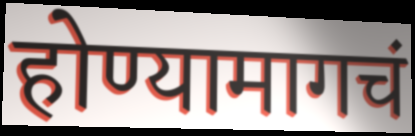
होण्यामागचं